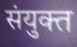
संयुक्‍त